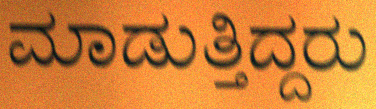
ಮಾಡುತ್ತಿದ್ದರು